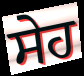
ਸੇਹ